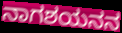
ನಾಗಶಯನನ